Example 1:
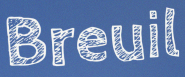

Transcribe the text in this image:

Breuil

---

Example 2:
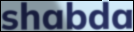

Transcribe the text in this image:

shabda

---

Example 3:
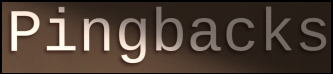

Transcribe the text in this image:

Pingbacks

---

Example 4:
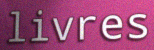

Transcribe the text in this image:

livres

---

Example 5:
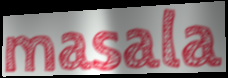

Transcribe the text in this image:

masala